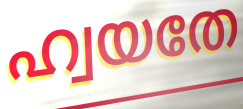
ഹ്വയതേ